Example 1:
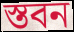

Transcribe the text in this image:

স্তবন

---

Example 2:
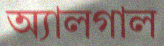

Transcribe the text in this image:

অ্যালগাল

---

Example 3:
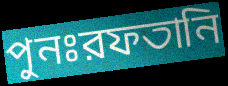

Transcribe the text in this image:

পুনঃরফতানি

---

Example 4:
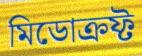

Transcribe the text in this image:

মিডোক্রফ্ট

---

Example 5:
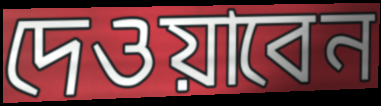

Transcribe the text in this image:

দেওয়াবেন